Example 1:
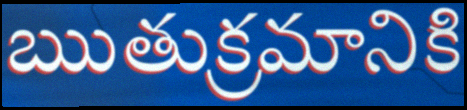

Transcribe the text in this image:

ఋతుక్రమానికి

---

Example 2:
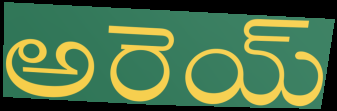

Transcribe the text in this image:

అరెయ్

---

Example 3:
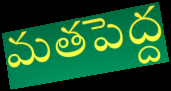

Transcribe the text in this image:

మతపెద్ద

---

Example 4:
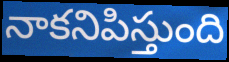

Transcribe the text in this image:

నాకనిపిస్తుంది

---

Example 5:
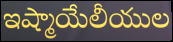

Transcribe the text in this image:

ఇష్మాయేలీయుల